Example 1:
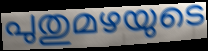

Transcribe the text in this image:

പുതുമഴയുടെ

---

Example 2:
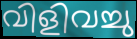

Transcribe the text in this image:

വിളിവച്ചു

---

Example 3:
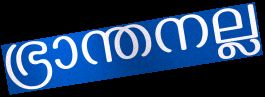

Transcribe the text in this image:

ഭ്രാന്തനല്ല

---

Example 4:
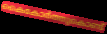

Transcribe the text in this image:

കൈകോർത്തുകൊണ്ട്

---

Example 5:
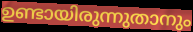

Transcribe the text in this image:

ഉണ്ടായിരുന്നുതാനും